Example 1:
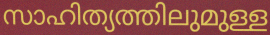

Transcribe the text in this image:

സാഹിത്യത്തിലുമുള്ള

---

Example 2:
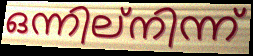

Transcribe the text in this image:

ഒന്നില്നിന്ന്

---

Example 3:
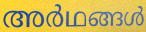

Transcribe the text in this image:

അർഥങ്ങൾ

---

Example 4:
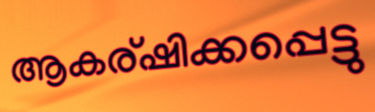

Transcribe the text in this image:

ആകര്ഷിക്കപ്പെട്ടു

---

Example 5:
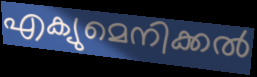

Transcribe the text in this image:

എക്യുമെനിക്കൽ